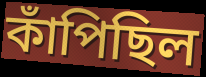
কাঁপিছিল